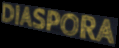
DIASPORA